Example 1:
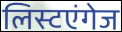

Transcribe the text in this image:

लिस्टएंगेज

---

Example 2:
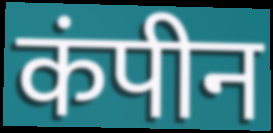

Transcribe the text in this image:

कंपीन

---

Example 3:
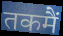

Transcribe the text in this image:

तकमैं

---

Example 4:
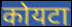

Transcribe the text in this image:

कोयटा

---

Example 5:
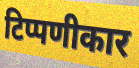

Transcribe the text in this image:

टिप्पणीकार